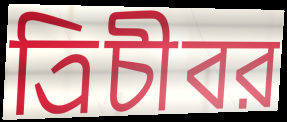
ত্রিচীবর